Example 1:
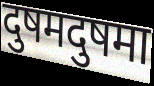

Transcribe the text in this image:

दुषमदुषमा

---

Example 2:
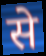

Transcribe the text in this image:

से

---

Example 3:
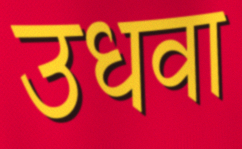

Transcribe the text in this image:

उधवा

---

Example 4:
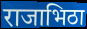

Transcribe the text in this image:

राजाभिठा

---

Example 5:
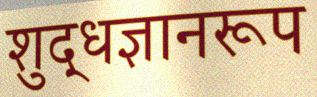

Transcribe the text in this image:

शुद्धज्ञानरूप